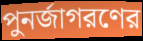
পুনর্জাগরণের